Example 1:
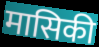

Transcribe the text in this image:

मासिकी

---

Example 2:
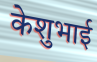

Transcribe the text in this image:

केशुभाई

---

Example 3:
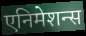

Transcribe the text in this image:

एनिमेशन्स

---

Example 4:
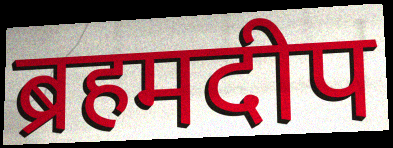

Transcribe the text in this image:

ब्रहमदीप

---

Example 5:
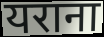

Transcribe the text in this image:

यराना